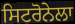
ਸਿਟਰੋਨੇਲਾ